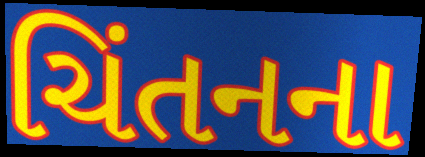
ચિંતનના